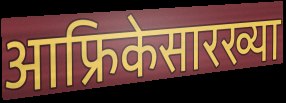
आफ्रिकेसारख्या